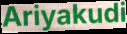
Ariyakudi